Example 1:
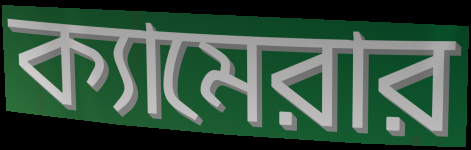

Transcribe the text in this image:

ক্যামেরার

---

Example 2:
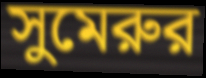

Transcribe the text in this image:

সুমেরুর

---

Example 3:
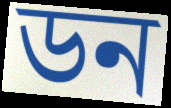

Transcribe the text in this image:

ডন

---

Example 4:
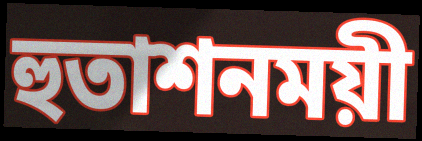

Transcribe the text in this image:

হুতাশনময়ী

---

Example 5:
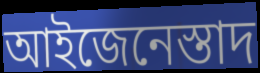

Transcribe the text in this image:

আইজেনেস্তাদ